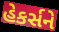
હેકર્સને